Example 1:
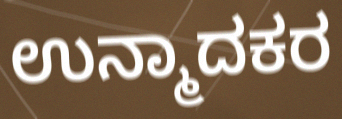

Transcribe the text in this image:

ಉನ್ಮಾದಕರ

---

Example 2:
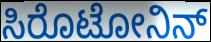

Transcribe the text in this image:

ಸಿರೊಟೋನಿನ್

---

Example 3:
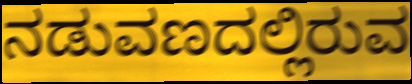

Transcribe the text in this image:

ನಡುವಣದಲ್ಲಿರುವ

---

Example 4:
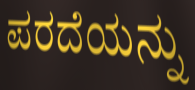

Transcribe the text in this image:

ಪರದೆಯನ್ನು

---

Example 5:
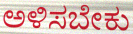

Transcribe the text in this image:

ಅಳಿಸಬೇಕು